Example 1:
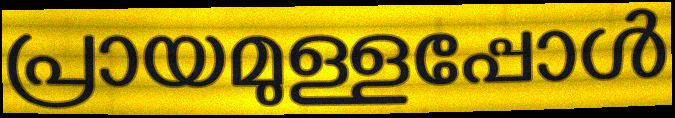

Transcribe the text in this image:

പ്രായമുള്ളപ്പോൾ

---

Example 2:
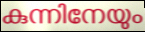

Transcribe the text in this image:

കുന്നിനേയും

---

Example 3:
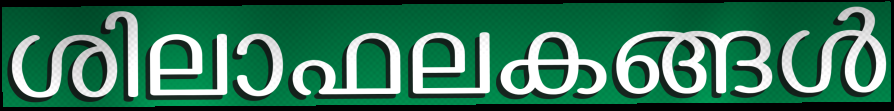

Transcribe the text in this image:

ശിലാഫലകങ്ങൾ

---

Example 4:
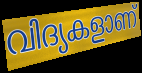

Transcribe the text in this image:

വിദ്യകളാണ്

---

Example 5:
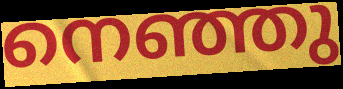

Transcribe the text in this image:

നെഞ്ഞു